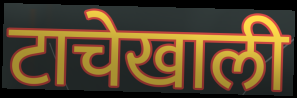
टाचेखाली